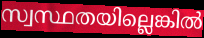
സ്വസ്ഥതയില്ലെങ്കിൽ